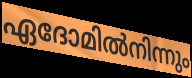
ഏദോമിൽനിന്നും